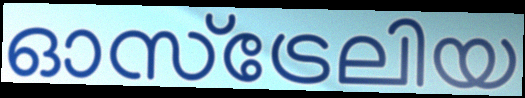
ഓസ്ട്രേലിയ